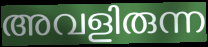
അവളിരുന്ന